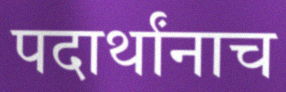
पदार्थांनाच